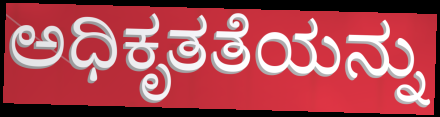
ಅಧಿಕೃತತೆಯನ್ನು